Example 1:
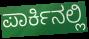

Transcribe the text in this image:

ಪಾರ್ಕಿನಲ್ಲಿ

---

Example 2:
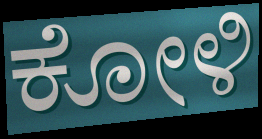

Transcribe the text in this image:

ಕೋಳಿ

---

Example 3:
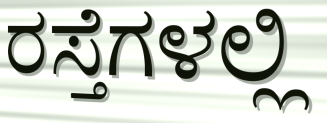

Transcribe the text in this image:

ರಸ್ತೆಗಳಲ್ಲಿ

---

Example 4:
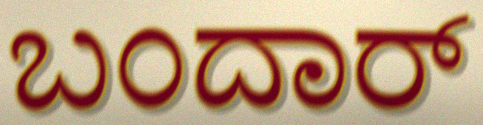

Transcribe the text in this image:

ಬಂದಾರ್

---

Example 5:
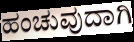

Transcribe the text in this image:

ಹಂಚುವುದಾಗಿ